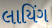
લાયિંગ